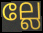
ല്ലേ